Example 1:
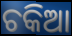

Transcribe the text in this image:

ଚକିଆ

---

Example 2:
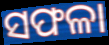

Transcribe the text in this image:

ସଫଳା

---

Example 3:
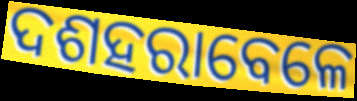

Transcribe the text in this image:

ଦଶହରାବେଳେ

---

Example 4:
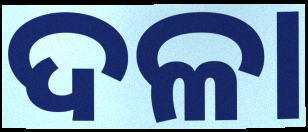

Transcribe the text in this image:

ଦଳା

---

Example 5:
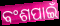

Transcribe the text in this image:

ବଂଶପାଇଁ